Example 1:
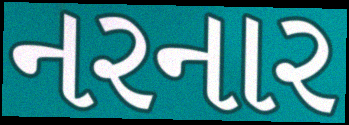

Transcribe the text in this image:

નરનાર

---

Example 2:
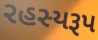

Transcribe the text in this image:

રહસ્યરૂપ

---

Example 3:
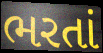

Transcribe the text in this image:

ભરતાં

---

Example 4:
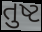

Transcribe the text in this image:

તુષ્ટ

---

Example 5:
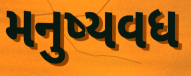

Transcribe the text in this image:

મનુષ્યવધ